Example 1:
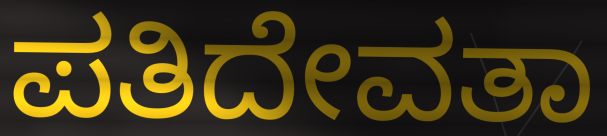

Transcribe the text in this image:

ಪತಿದೇವತಾ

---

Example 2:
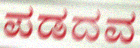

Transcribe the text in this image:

ಪಡದವ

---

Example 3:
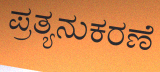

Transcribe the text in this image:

ಪ್ರತ್ಯನುಕರಣೆ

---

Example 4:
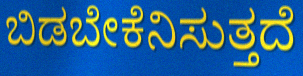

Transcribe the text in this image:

ಬಿಡಬೇಕೆನಿಸುತ್ತದೆ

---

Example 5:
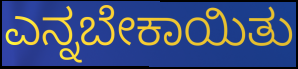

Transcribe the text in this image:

ಎನ್ನಬೇಕಾಯಿತು